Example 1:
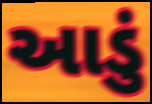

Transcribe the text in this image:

આડું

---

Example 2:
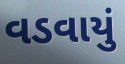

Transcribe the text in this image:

વડવાયું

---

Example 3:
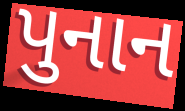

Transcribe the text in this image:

પુનાન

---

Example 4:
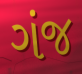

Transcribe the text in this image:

ગંજ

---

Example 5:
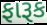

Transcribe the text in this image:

ફારૂક